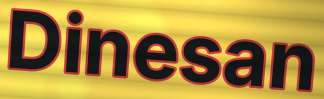
Dinesan